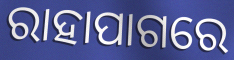
ରାହାପାଗରେ